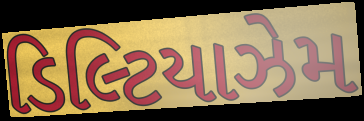
ડિલ્ટિયાઝેમ